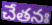
చేతనః